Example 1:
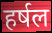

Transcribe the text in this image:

हर्षल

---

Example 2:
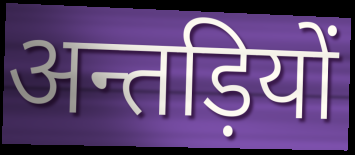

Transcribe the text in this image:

अन्तड़ियों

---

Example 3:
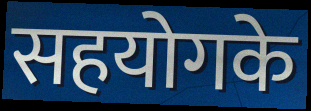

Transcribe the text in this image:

सहयोगके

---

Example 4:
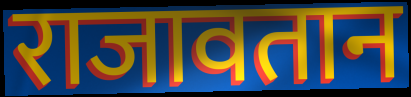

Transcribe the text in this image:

राजावतान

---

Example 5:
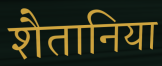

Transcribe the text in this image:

शैतानिया